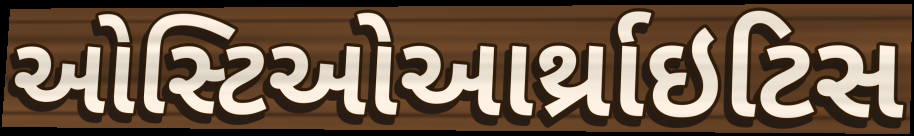
ઓસ્ટિઓઆર્થ્રાઇટિસ